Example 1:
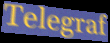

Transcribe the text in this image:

Telegraf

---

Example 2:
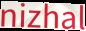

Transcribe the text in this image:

nizhal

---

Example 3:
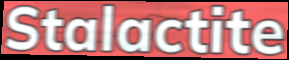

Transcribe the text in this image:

Stalactite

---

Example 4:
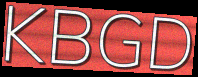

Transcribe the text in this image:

KBGD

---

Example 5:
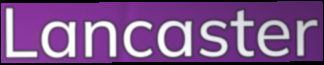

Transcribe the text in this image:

Lancaster